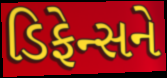
ડિફેન્સને